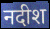
नदीश